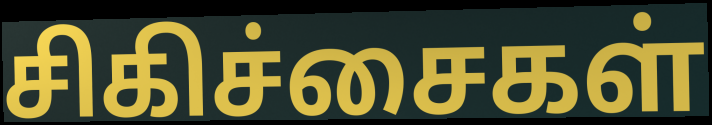
சிகிச்சைகள்